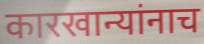
कारखान्यांनाच